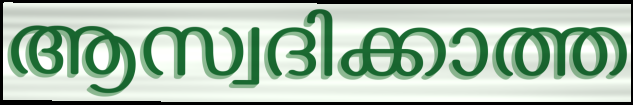
ആസ്വദിക്കാത്ത